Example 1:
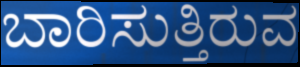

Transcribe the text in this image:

ಬಾರಿಸುತ್ತಿರುವ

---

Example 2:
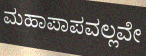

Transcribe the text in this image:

ಮಹಾಪಾಪವಲ್ಲವೇ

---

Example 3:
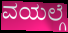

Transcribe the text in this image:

ವಯಲ್ಗೆ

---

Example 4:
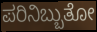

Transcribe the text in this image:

ಪರಿನಿಬ್ಬುತೋ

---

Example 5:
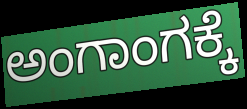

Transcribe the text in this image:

ಅಂಗಾಂಗಕ್ಕೆ